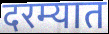
दरम्यात